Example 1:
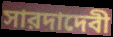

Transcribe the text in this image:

সারদাদেবী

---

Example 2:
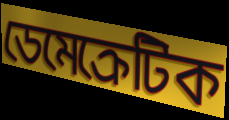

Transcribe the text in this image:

ডেমেক্রেটিক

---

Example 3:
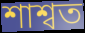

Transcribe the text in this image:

শাশ্বত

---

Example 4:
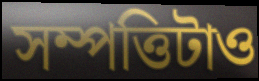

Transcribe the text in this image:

সম্পত্তিটাও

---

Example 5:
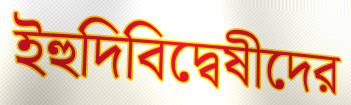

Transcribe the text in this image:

ইহুদিবিদ্বেষীদের